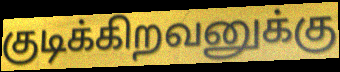
குடிக்கிறவனுக்கு